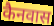
कैनवास